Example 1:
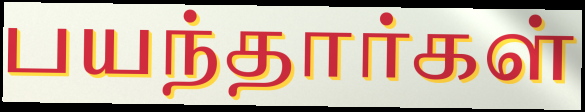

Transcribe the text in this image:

பயந்தார்கள்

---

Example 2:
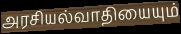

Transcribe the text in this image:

அரசியல்வாதியையும்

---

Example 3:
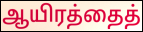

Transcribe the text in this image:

ஆயிரத்தைத்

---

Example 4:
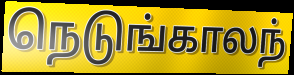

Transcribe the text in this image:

நெடுங்காலந்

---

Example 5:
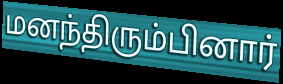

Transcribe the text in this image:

மனந்திரும்பினார்